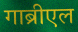
गाब्रीएल